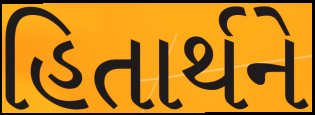
હિતાર્થને